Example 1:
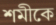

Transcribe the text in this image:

শমীকে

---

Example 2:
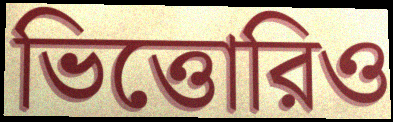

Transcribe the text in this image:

ভিত্তোরিও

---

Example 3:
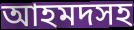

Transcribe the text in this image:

আহমদসহ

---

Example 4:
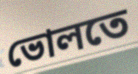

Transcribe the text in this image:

ভোলতে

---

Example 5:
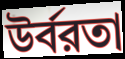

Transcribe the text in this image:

উর্বরতা